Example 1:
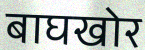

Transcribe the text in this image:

बाघखोर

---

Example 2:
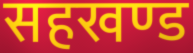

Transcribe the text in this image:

सहखण्ड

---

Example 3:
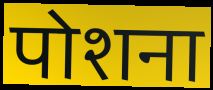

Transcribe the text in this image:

पोशना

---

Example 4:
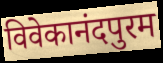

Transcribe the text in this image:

विवेकानंदपुरम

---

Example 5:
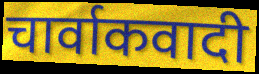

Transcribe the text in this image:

चार्वाकवादी